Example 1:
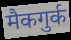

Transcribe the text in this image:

मैकगुर्क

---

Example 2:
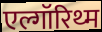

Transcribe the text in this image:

एल्गॉरिथ्म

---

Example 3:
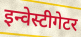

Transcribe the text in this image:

इन्वेस्टीगेटर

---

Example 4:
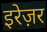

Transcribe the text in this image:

इरेज़र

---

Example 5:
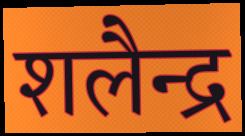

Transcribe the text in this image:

शलैन्द्र